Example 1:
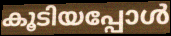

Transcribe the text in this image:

കൂടിയപ്പോൾ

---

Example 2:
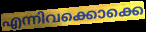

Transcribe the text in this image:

എന്നിവക്കൊക്കെ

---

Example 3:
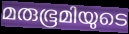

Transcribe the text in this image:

മരുഭൂമിയുടെ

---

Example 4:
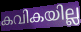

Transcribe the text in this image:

കവികയില്ല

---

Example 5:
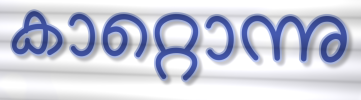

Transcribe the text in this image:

കാറ്റൊന്നു